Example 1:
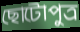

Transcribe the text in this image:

ছোটোপুত্র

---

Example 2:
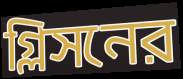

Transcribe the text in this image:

গ্লিসনের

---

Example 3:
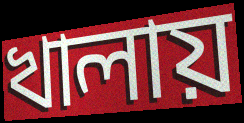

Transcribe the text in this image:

খালায়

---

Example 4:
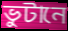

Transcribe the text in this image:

ভুটানে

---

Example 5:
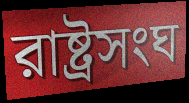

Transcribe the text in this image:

রাষ্ট্রসংঘ